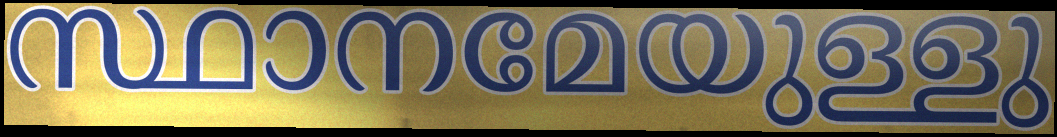
സ്ഥാനമേയുള്ളു